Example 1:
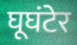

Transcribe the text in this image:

घूघंटेर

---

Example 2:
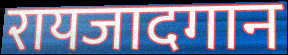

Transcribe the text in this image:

रायजादगान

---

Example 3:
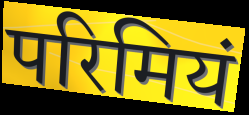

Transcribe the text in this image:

परिमियं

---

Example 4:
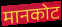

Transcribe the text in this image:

मानकोट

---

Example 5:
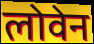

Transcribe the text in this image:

लोवेन